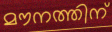
മൗനത്തിന്